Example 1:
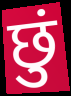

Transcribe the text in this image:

छुं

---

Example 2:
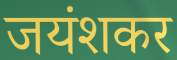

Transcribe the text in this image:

जयंशकर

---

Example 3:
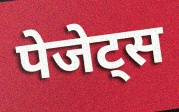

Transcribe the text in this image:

पेजेट्स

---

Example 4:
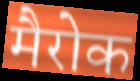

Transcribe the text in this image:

मैरोक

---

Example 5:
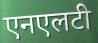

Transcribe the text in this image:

एनएलटी